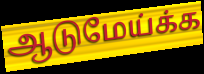
ஆடுமேய்க்க